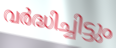
വർദ്ധിച്ചിട്ടും